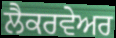
ਲੈਕਰਵੇਅਰ